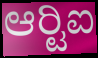
ಆರ್‍ಟಿಐ